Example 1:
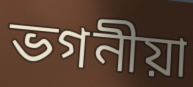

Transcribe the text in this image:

ভগনীয়া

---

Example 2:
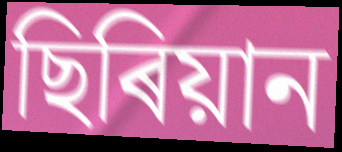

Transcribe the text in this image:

ছিৰিয়ান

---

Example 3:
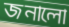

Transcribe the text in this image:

জনালো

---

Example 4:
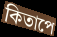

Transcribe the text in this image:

কিতাপে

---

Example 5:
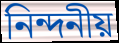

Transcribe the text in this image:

নিন্দনীয়